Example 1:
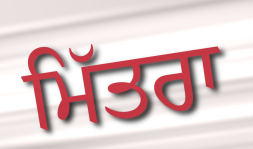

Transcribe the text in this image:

ਮਿੱਤਰਾ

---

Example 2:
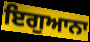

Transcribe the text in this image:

ਇਗੁਆਨਾ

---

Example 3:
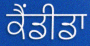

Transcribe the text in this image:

ਕੈਂਡੀਡਾ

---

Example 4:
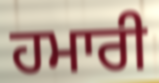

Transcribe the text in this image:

ਹਮਾਰੀ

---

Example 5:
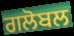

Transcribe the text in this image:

ਗਲੋਬਲ